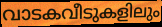
വാടകവീടുകളിലും